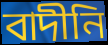
বাদীনি